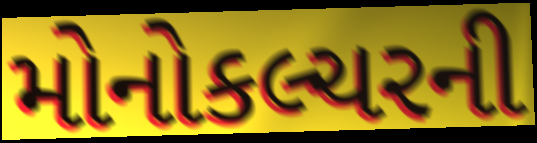
મોનોકલ્ચરની